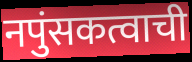
नपुंसकत्वाची